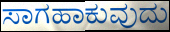
ಸಾಗಹಾಕುವುದು